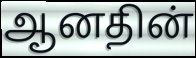
ஆனதின்